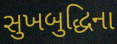
સુખબુદ્ધિના